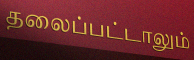
தலைப்பட்டாலும்